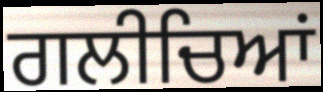
ਗਲੀਚਿਆਂ